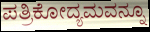
ಪತ್ರಿಕೋದ್ಯಮವನ್ನೂ